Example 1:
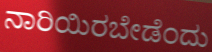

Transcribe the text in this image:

ನಾರಿಯಿರಬೇಡೆಂದು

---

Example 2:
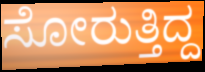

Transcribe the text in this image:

ಸೋರುತ್ತಿದ್ದ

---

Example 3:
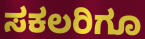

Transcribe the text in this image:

ಸಕಲರಿಗೂ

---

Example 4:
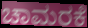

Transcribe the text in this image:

ಚಾಮರಕೆ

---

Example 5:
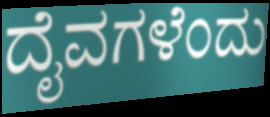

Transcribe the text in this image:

ದೈವಗಳೆಂದು